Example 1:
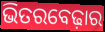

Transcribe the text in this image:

ଭିତରବେଢ଼ାର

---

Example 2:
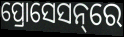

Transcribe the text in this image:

ପ୍ରୋସେସନ୍‌ରେ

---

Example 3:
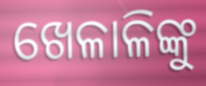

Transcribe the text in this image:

ଖେଳାଳିଙ୍କୁ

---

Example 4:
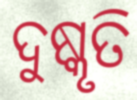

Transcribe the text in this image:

ଦୁଷ୍କୃତି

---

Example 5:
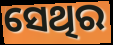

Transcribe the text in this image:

ସେଥିର